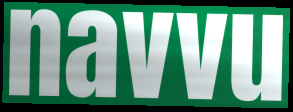
navvu